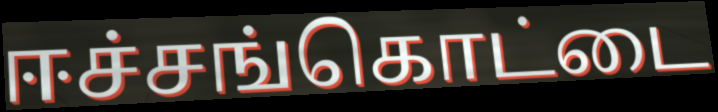
ஈச்சங்கொட்டை